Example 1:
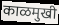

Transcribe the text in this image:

काळमुखी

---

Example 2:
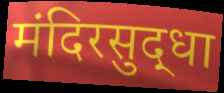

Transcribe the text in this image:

मंदिरसुद्धा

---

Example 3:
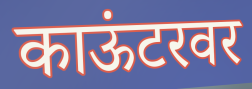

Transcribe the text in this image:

काऊंटरवर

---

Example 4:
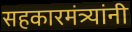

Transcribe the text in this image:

सहकारमंत्र्यांनी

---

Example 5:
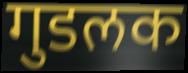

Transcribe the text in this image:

गुडलक